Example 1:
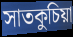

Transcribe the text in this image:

সাতকুচিয়া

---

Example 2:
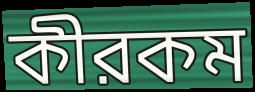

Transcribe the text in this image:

কীরকম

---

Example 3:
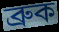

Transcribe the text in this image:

ব্রুক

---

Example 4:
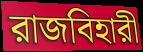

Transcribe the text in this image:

রাজবিহারী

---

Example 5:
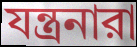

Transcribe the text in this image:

যন্ত্রনারা